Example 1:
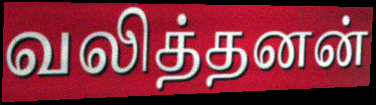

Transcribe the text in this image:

வலித்தனன்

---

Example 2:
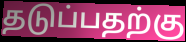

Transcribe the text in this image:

தடுப்பதற்கு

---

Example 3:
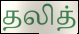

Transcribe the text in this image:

தலித்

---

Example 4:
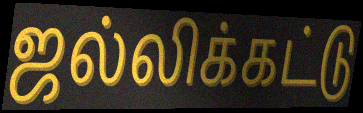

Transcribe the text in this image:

ஜல்லிக்கட்டு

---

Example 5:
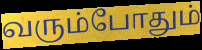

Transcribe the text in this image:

வரும்போதும்